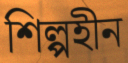
শিল্পহীন